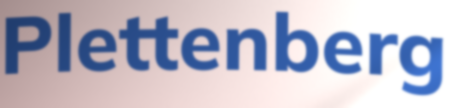
Plettenberg